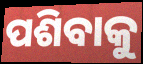
ପଶିବାକୁ